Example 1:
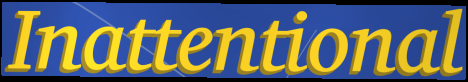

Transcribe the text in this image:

Inattentional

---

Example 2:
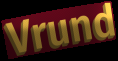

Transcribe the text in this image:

Vrund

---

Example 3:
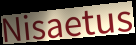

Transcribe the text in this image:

Nisaetus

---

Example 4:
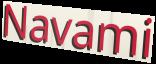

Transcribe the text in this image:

Navami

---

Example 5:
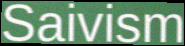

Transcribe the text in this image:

Saivism